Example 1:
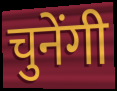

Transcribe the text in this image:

चुनेंगी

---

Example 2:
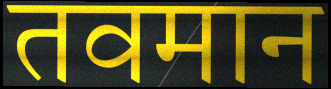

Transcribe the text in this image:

तवमान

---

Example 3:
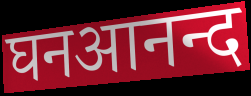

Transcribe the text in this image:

घनआनन्द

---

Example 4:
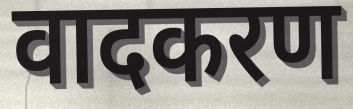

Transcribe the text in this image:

वादकरण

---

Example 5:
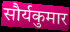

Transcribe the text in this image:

सौर्यकुमार